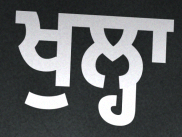
ਖੁਲ੍ਹਾ